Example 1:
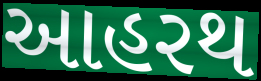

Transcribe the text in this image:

આહરથ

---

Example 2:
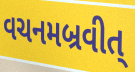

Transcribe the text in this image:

વચનમબ્રવીત્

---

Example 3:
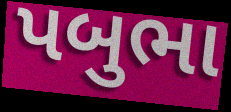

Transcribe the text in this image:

પબુભા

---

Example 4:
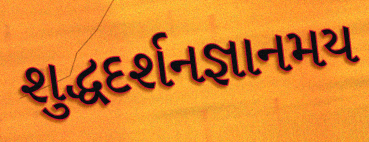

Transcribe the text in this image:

શુદ્ધદર્શનજ્ઞાનમય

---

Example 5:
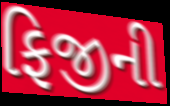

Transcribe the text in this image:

ફિજીની